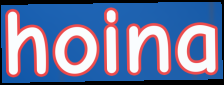
hoina